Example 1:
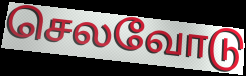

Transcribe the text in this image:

செலவோடு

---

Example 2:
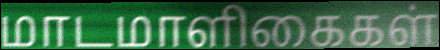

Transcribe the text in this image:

மாடமாளிகைகள்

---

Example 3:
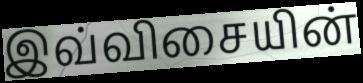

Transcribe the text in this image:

இவ்விசையின்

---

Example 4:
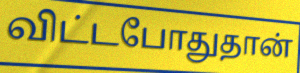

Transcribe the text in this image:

விட்டபோதுதான்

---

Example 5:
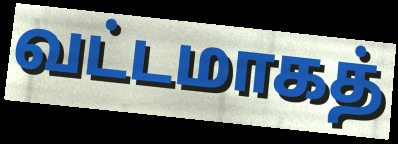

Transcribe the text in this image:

வட்டமாகத்